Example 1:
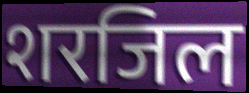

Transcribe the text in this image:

शरजिल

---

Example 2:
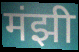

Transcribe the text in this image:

मंझी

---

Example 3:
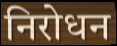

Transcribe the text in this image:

निरोधन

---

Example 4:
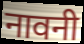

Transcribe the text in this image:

नावनी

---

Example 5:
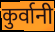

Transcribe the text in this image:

कुर्वानी